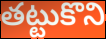
తట్టుకొని